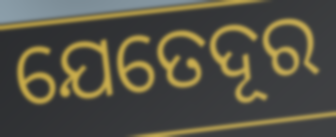
ଯେତେଦୂର